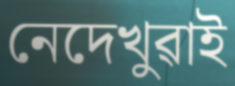
নেদেখুৱাই